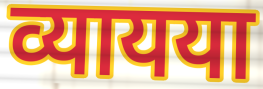
व्यायया